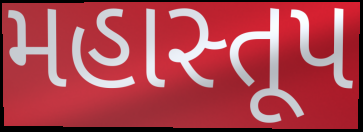
મહાસ્તૂપ